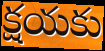
క్షయకు